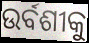
ଉର୍ବଶୀକୁ